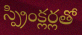
స్ప్రింక్లర్లతో